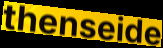
thenseide